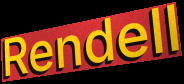
Rendell